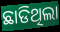
ଛାଡିଥିଲା